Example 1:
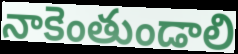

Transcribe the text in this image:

నాకెంతుండాలి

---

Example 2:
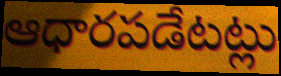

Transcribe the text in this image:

ఆధారపడేటట్లు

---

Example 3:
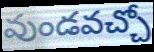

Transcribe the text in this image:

వుండవచ్చో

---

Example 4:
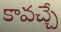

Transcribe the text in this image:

కావచ్చే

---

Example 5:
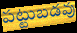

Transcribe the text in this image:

పట్టుబడవు